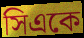
সিএকে